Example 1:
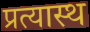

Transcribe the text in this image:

प्रत्यास्थ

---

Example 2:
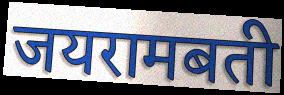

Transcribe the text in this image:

जयरामबती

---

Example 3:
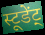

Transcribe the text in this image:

स्टूडेंट्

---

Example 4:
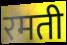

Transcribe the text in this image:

रमती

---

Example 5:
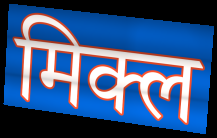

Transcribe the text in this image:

मिक्ल